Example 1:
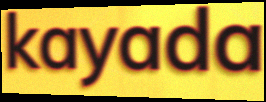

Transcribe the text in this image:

kayada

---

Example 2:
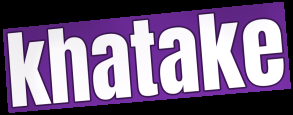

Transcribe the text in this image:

khatake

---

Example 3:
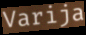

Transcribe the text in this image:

Varija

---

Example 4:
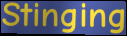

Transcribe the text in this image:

Stinging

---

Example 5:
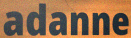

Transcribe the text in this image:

adanne